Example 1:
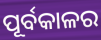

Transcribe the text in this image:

ପୂର୍ବକାଳର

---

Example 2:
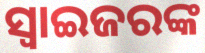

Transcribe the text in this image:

ସ୍ଵାଇଜରଙ୍କ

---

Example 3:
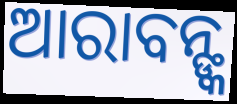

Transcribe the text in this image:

ଆରାବନ୍ଙ୍କ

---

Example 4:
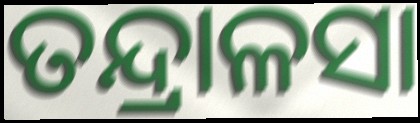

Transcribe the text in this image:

ତନ୍ଦ୍ରାଳସା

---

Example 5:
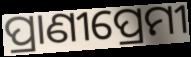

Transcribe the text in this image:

ପ୍ରାଣୀପ୍ରେମୀ